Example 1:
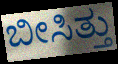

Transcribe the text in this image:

ಬೀಸಿತ್ತು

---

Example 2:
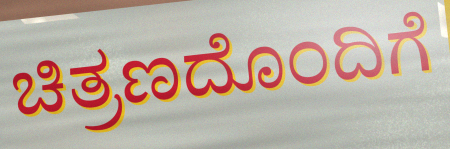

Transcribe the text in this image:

ಚಿತ್ರಣದೊಂದಿಗೆ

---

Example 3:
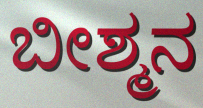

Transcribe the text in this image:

ಬೀಶ್ಮನ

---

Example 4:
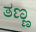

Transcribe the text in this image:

ತಣ್ಣ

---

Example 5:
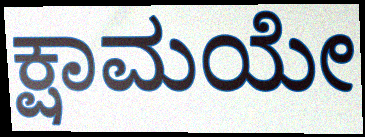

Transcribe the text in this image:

ಕ್ಷಾಮಯೇ